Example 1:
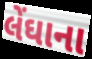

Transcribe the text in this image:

લેંઘાના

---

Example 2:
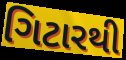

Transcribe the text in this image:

ગિટારથી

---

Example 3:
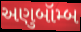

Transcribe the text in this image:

અણુબૉમ્બ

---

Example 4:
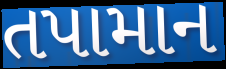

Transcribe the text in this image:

તપામાન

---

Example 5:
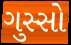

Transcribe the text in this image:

ગુસ્સો